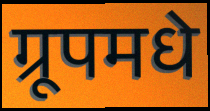
ग्रूपमधे